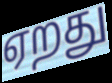
ஏறது